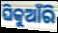
ଘିକୁଆଁରି